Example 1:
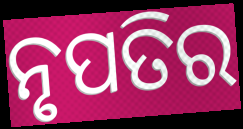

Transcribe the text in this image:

ନୃପତିର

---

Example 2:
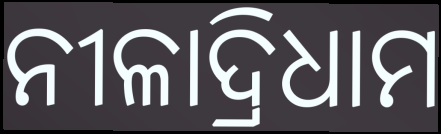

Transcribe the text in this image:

ନୀଳାଦ୍ରିଧାମ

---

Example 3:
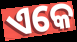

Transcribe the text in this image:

ଏକେ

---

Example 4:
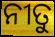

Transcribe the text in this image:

ନୀତୁ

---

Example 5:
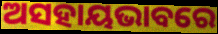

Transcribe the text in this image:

ଅସହାୟଭାବରେ